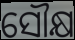
ସୌକ୍ଷ